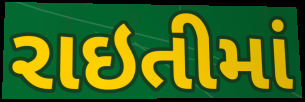
રાઇતીમાં